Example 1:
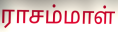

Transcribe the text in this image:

ராசம்மாள்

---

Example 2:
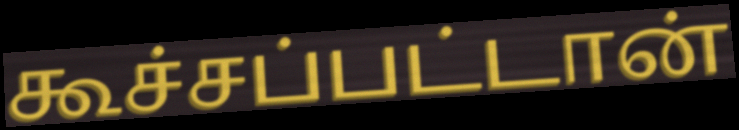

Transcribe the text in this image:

கூச்சப்பட்டான்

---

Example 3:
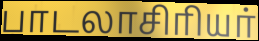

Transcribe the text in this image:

பாடலாசிரியர்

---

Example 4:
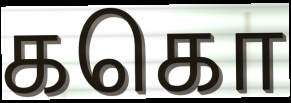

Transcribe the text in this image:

ககொ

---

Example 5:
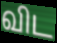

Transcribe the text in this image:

விட